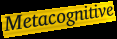
Metacognitive